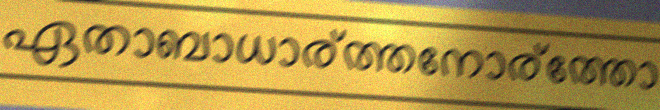
ഏതാബാധാര്ത്തനോര്ത്തോ